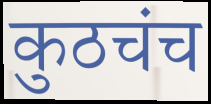
कुठचंच